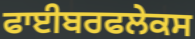
ਫਾਈਬਰਫਲੇਕਸ